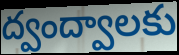
ద్వంద్వాలకు